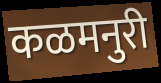
कळमनुरी